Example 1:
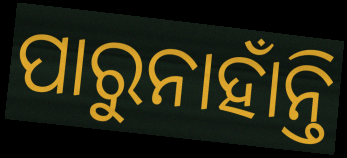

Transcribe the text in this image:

ପାରୁନାହାଁନ୍ତି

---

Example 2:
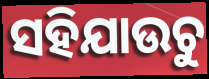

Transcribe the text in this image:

ସହିଯାଉଚୁ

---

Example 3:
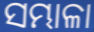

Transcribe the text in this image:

ସମ୍ଭାଳା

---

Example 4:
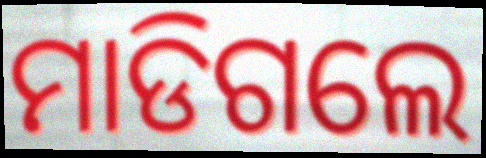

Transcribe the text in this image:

ମାଡିଗଲେ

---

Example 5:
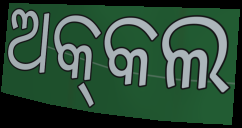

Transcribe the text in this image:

ଅକ୍‍କଲ